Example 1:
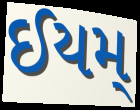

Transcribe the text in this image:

ઈયમ્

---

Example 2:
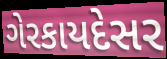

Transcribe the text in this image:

ગેરકાયદેસર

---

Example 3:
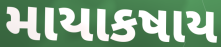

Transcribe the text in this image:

માયાકષાય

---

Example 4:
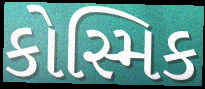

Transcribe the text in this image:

કોસ્મિક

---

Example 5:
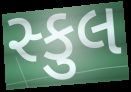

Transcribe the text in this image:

સ્કુલ